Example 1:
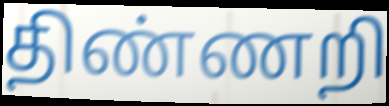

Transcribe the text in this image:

திண்ணறி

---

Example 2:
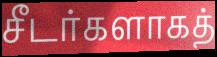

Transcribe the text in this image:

சீடர்களாகத்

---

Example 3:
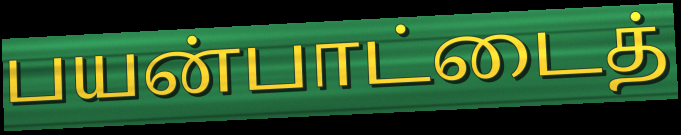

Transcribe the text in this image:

பயன்பாட்டைத்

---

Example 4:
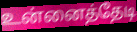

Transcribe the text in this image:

உன்னைத்தேடி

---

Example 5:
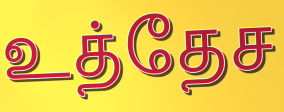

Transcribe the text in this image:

உத்தேச